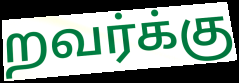
றவர்க்கு